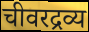
चीवरद्रव्य